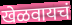
खेळवायचं